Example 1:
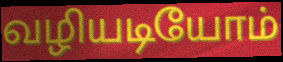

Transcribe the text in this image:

வழியடியோம்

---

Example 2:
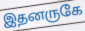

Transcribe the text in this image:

இதனருகே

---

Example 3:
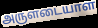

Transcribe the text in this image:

அருளடையாள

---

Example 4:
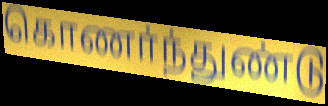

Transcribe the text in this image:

கொணர்ந்துண்டு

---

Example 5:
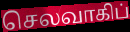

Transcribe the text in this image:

செலவாகிப்